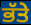
ਭੱਤੇ